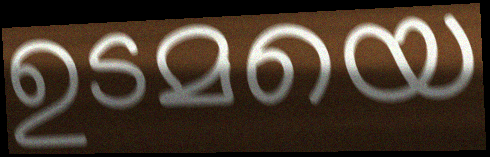
ഉടമയെ